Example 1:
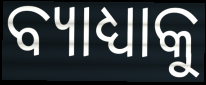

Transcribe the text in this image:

ବ୍ୟାଧ୍ୟାକୁ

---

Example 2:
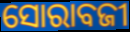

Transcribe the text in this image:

ସୋରାବଜୀ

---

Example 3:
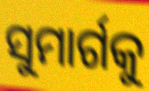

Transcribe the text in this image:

ସୁମାର୍ଗକୁ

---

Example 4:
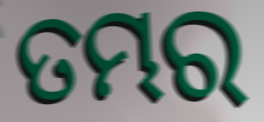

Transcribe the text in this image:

ତମ୍ଭର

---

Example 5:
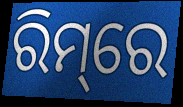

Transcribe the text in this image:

ରିମ୍‌ରେ